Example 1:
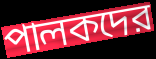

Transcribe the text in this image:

পালকদের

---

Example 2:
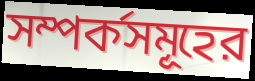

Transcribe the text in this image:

সম্পর্কসমূহের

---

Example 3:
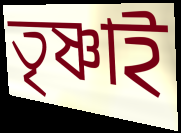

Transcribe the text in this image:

তৃষ্ণাই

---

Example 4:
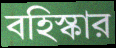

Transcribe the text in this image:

বহিস্কার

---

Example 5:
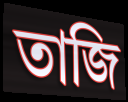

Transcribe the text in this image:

তাজি